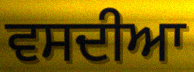
ਵਸਦੀਆ